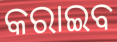
କରାଇବ